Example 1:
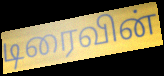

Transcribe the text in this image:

டிரைவின்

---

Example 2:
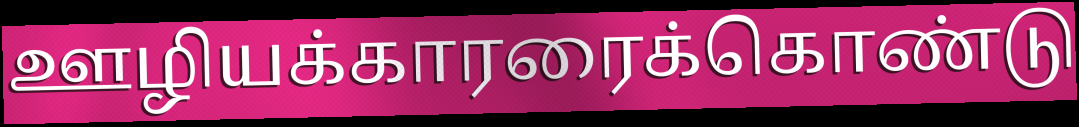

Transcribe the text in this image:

ஊழியக்காரரைக்கொண்டு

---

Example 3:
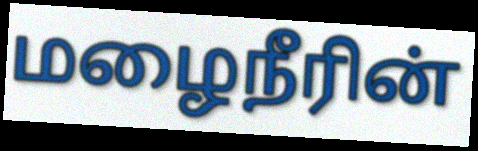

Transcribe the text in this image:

மழைநீரின்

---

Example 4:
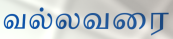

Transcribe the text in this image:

வல்லவரை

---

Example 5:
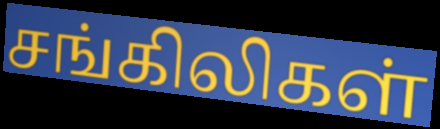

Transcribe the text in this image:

சங்கிலிகள்